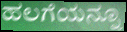
ಹಲಗೆಯನ್ನೂ